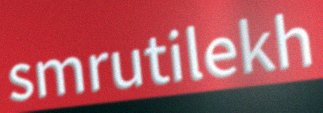
smrutilekh